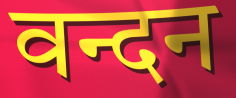
वन्दन